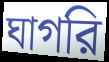
ঘাগরি